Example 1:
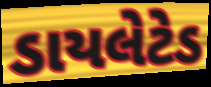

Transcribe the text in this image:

ડાયલેટેડ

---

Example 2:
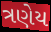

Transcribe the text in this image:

ત્રણેય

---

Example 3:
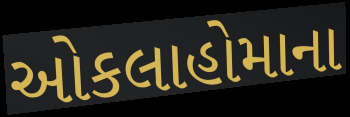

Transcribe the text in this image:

ઓકલાહોમાના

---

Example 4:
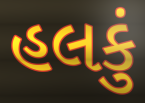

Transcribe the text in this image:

હલકું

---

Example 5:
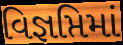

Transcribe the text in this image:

વિજ્ઞપ્તિમાં